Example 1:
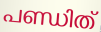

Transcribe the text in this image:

പണ്ഡിത്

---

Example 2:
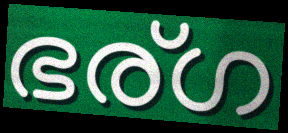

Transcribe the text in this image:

ഭര്ഗ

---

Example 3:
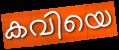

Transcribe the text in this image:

കവിയെ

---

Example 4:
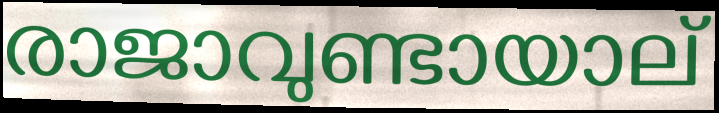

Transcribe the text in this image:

രാജാവുണ്ടായാല്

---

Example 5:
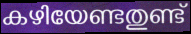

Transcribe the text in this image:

കഴിയേണ്ടതുണ്ട്